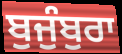
ਬੁਜੁੰਬੁਰਾ